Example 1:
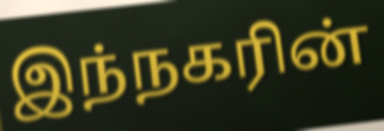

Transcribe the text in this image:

இந்நகரின்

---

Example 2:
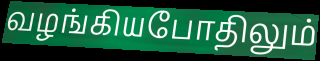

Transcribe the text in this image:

வழங்கியபோதிலும்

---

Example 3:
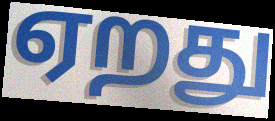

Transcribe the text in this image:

ஏறது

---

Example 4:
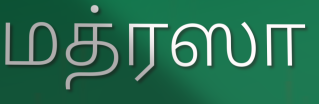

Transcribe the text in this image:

மத்ரஸா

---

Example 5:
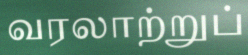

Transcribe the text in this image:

வரலாற்றுப்